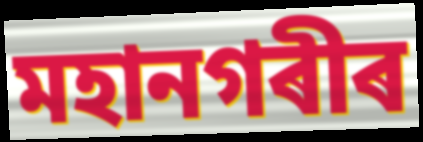
মহানগৰীৰ